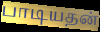
பாடியதன்